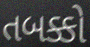
તબક્કો